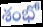
శంభో